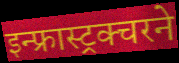
इन्फ्रास्ट्रक्चरने